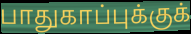
பாதுகாப்புக்குக்